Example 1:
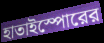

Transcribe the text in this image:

হাতাইস্পোরের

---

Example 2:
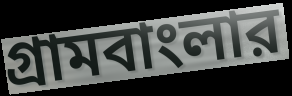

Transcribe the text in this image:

গ্রামবাংলার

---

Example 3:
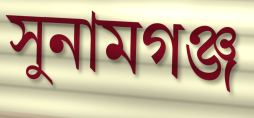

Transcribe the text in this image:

সুনামগঞ্জ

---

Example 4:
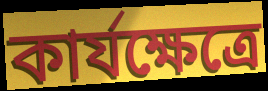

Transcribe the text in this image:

কার্যক্ষেত্রে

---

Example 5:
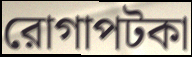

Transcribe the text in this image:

রোগাপটকা